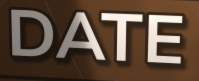
DATE